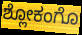
ಶ್ಲೋಕಂಗೊ